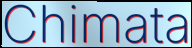
Chimata